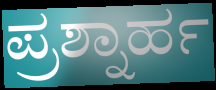
ಪ್ರಶ್ನಾರ್ಹ